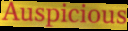
Auspicious